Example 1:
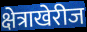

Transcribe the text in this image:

क्षेत्राखेरीज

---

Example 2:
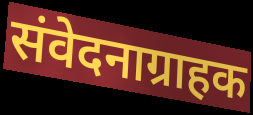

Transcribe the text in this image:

संवेदनाग्राहक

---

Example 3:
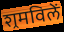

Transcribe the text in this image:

श्रमविलें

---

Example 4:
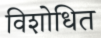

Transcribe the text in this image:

विशोधित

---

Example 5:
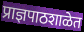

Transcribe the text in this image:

प्राज्ञपाठशाळेत